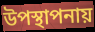
উপস্থাপনায়